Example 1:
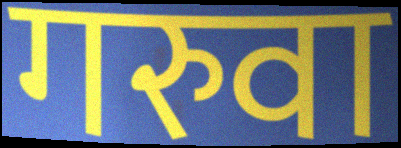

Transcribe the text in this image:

गरुवा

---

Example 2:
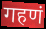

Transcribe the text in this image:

गहणं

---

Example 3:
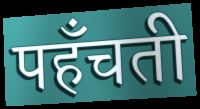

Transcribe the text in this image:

पहँचती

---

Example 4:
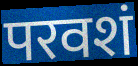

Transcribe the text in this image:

परवशं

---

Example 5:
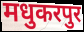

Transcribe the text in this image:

मधुकरपुर